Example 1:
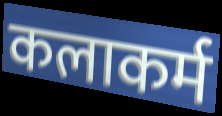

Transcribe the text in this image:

कलाकर्म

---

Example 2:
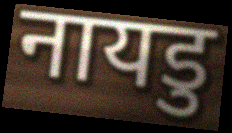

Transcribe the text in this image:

नायडु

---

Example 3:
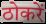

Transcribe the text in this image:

ठोकरें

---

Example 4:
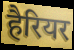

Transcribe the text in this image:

हैरियर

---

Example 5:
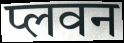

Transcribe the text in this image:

प्लवन